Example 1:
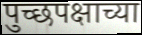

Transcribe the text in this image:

पुच्छपक्षाच्या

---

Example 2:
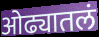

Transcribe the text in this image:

ओढ्यातलं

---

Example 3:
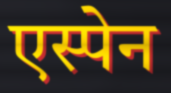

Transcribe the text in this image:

एस्पेन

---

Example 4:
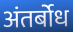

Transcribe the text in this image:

अंतर्बोध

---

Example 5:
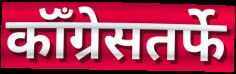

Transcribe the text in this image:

कॉँग्रेसतर्फे